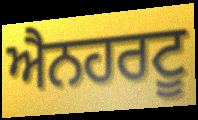
ਐਨਹਰਟੂ